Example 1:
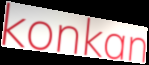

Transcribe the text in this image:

konkan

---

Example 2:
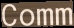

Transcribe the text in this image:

Comm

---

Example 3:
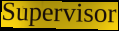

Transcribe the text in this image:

Supervisor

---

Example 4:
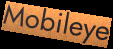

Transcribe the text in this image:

Mobileye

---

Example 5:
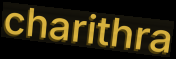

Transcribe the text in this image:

charithra